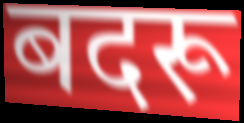
बदरू